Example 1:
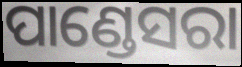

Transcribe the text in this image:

ପାଣ୍ଡେସରା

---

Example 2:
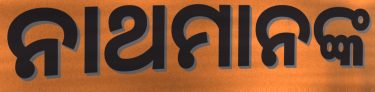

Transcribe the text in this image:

ନାଥମାନଙ୍କ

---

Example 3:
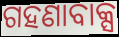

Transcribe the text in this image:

ଗହଣାବାକ୍ସ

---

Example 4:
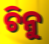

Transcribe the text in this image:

ଚିନୁ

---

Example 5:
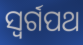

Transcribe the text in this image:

ସ୍ୱର୍ଗପଥ